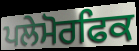
ਪਲੇਮੋਰਫਿਕ